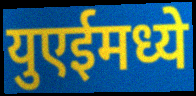
युएईमध्ये